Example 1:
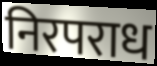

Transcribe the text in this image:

निरपराध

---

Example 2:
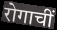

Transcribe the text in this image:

रोगाचीं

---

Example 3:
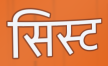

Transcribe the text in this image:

सिस्ट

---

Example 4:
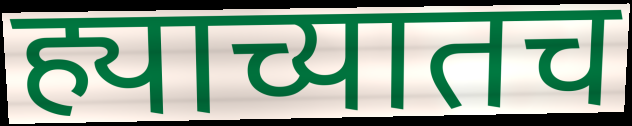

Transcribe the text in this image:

ह्याच्यातच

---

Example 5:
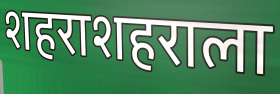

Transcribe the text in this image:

शहराशहराला